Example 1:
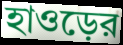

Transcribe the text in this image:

হাওড়ের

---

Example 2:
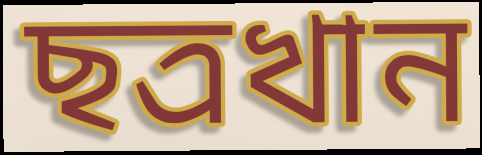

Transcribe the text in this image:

ছত্রখান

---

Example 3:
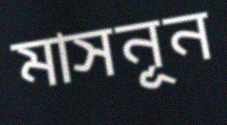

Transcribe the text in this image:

মাসনূন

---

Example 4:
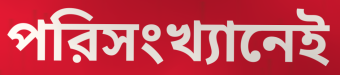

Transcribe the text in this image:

পরিসংখ্যানেই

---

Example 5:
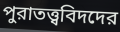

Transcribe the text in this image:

পুরাতত্ত্ববিদদের